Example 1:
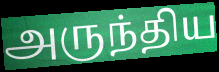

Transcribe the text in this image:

அருந்திய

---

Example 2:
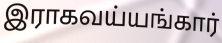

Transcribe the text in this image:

இராகவய்யங்கார்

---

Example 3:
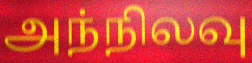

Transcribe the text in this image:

அந்நிலவு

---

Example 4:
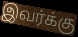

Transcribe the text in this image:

இவர்க்கு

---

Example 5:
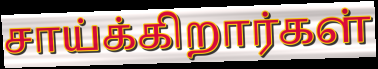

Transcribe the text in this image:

சாய்க்கிறார்கள்